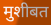
मुशीबत